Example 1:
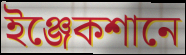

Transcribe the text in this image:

ইঞ্জেকশানে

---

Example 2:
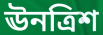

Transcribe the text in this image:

ঊনত্রিশ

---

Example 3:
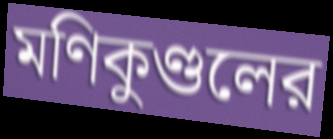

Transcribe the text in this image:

মণিকুণ্ডলের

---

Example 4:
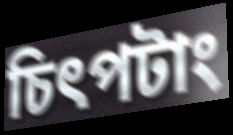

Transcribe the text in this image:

চিৎপটাং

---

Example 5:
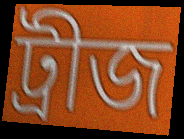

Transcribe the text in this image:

ট্রীজ